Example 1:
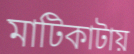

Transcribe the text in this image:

মাটিকাটায়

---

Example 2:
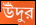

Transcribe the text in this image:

উঁদুর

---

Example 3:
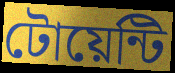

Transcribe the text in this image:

টোয়েন্টি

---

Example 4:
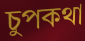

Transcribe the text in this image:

চুপকথা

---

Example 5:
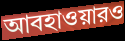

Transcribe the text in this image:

আবহাওয়ারও